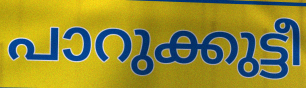
പാറുക്കുട്ടീ